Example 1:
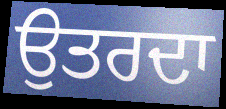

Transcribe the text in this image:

ਉਤਰਦਾ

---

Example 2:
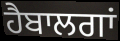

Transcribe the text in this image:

ਹੈਬਾਲਗਾਂ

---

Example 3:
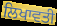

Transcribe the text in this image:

ਲਿਖਾਵਤੀ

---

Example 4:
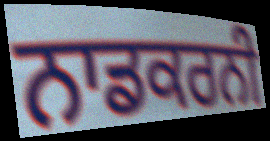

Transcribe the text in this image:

ਨਾਡਕਰਨੀ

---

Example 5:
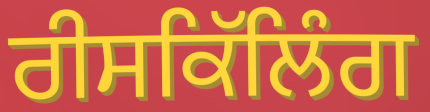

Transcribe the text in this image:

ਰੀਸਕਿੱਲਿੰਗ